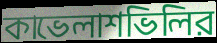
কাভেলাশভিলির